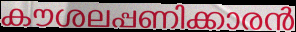
കൗശലപ്പണിക്കാരൻ